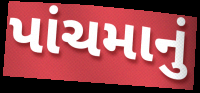
પાંચમાનું